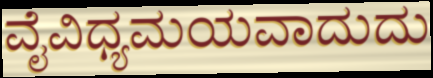
ವೈವಿಧ್ಯಮಯವಾದುದು